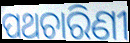
ପଥଚାରିଣୀ